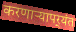
करणाऱ्यापर्यंत